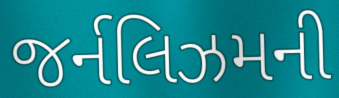
જર્નલિઝમની